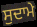
ਸੁਦਾਮੇ